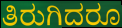
ತಿರುಗಿದರೂ